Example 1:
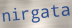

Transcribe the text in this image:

nirgata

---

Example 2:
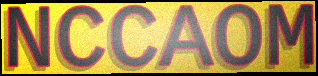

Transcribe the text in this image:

NCCAOM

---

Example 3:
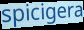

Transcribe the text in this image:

spicigera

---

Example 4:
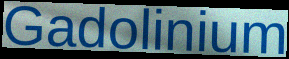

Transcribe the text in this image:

Gadolinium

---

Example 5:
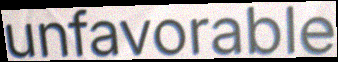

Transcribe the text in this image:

unfavorable